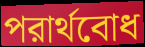
পরার্থবোধ